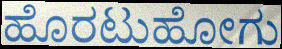
ಹೊರಟುಹೋಗು